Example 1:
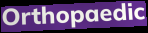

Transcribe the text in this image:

Orthopaedic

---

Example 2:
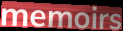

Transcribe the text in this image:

memoirs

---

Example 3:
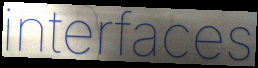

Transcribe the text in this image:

interfaces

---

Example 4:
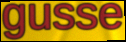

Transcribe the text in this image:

gusse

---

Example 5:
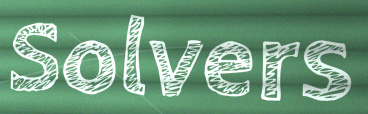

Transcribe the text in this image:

Solvers